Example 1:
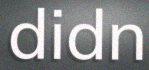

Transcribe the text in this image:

didn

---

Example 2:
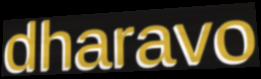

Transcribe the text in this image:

dharavo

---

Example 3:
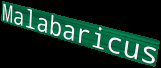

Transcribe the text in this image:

Malabaricus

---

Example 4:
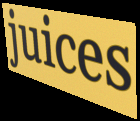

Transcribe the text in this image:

juices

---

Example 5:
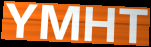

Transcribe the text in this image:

YMHT